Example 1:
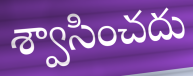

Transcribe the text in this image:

శ్వాసించదు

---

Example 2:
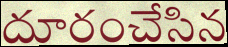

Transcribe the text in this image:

దూరంచేసిన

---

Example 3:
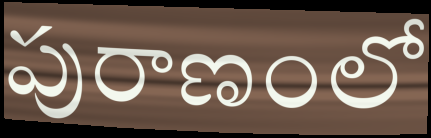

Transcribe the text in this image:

పురాణంలో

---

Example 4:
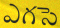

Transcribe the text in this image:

ఎగసె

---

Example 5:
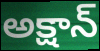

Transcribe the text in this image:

అక్షాన్